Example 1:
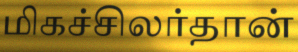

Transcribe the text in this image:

மிகச்சிலர்தான்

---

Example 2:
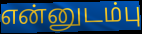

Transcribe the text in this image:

என்னுடம்பு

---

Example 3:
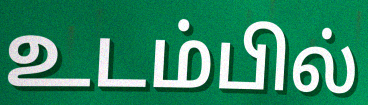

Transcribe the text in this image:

உடம்பில்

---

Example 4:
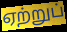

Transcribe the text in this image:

ஏற்றுப்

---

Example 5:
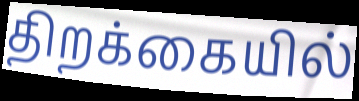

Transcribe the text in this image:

திறக்கையில்